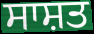
ਸਾਸ਼ਤ